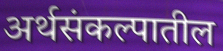
अर्थसंकल्पातील